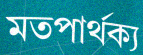
মতপার্থক্য